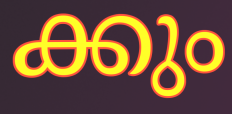
ക്കും